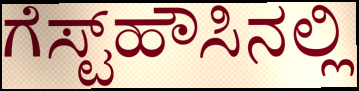
ಗೆಸ್ಟ್‌ಹೌಸಿನಲ್ಲಿ